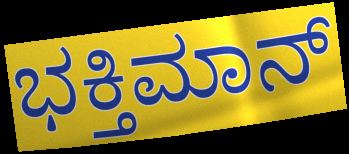
ಭಕ್ತಿಮಾನ್